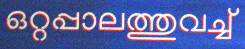
ഒറ്റപ്പാലത്തുവച്ച്